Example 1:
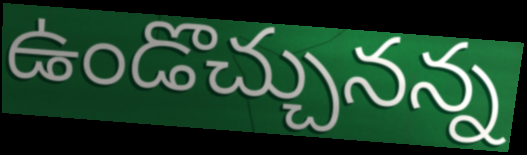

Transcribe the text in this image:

ఉండొచ్చునన్న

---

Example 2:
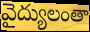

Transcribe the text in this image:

వైద్యులంతా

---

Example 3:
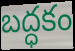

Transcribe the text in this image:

బద్ధకం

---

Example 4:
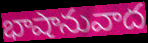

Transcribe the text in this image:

భాషానువాద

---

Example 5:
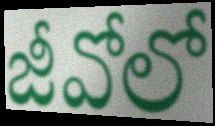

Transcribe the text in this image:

జీవోలో